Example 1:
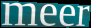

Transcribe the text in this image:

meer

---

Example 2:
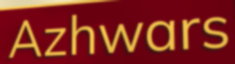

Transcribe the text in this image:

Azhwars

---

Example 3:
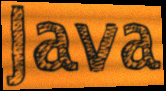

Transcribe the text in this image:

Java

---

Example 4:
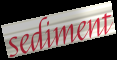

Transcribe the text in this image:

sediment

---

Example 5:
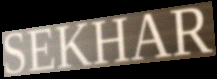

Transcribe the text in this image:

SEKHAR